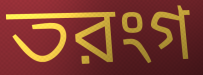
তরংগ